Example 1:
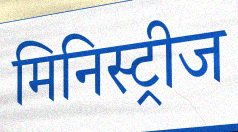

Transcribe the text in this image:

मिनिस्ट्रीज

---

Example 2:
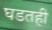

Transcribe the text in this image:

घडतही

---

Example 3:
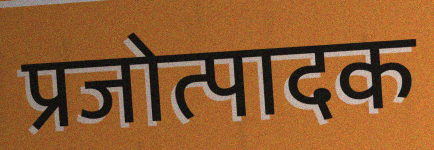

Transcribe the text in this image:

प्रजोत्पादक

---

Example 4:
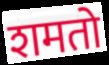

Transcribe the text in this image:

शमतो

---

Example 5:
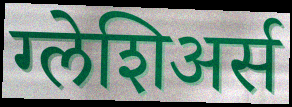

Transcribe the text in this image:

ग्लेशिअर्स